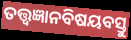
ତତ୍ତ୍ୱଜ୍ଞାନବିଷୟବସ୍ତୁ